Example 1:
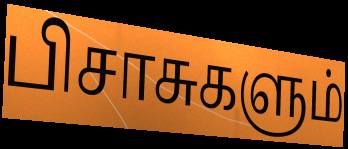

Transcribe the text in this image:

பிசாசுகளும்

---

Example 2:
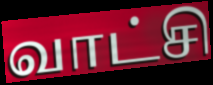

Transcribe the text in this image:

வாட்சி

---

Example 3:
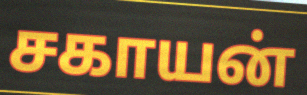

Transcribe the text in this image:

சகாயன்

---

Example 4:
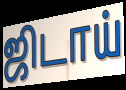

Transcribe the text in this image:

ஜிடாய்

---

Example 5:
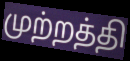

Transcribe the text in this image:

முற்றத்தி